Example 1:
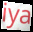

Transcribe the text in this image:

iya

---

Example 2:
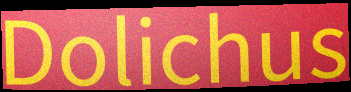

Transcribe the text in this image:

Dolichus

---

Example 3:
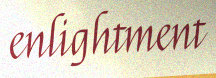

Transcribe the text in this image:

enlightment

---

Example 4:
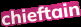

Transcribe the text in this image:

chieftain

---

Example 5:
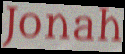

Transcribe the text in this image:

Jonah